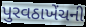
પુરવઠાખેંચની